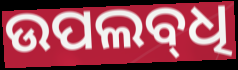
ଉପଲବ୍‍ଧି